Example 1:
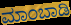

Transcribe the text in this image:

ಮಾಂಬಾಡಿ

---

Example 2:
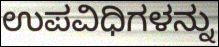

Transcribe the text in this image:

ಉಪವಿಧಿಗಳನ್ನು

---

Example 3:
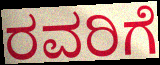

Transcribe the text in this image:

ರವರಿಗೆ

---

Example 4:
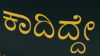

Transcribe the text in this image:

ಕಾದಿದ್ದೇ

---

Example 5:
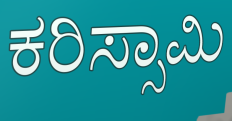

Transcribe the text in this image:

ಕರಿಸ್ಸಾಮಿ